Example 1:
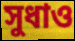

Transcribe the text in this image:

সুধাও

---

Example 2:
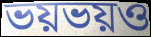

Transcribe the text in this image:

ভয়ভয়ও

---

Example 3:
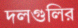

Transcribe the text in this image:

দলগুলির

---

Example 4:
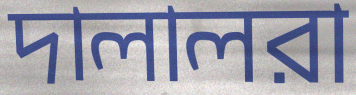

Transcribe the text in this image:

দালালরা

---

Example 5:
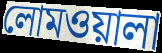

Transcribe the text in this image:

লোমওয়ালা